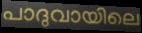
പാദുവായിലെ